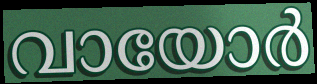
വായോർ